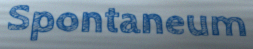
Spontaneum